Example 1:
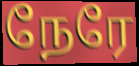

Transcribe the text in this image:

நேரே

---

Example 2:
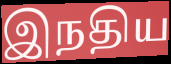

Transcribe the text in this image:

இநதிய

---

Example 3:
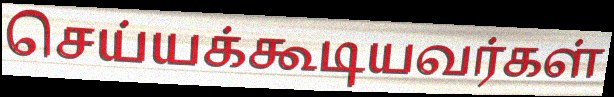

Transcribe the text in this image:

செய்யக்கூடியவர்கள்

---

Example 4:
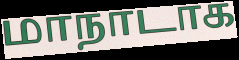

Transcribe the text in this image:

மாநாடாக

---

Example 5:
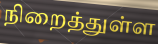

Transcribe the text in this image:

நிறைத்துள்ள